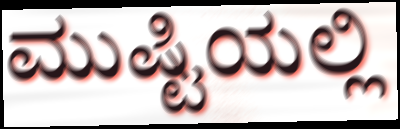
ಮುಷ್ಟಿಯಲ್ಲಿ